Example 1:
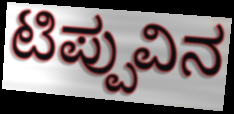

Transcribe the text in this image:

ಟಿಪ್ಪುವಿನ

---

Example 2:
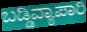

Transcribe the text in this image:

ಬಡ್ಡಿವ್ಯಾಪಾರಿ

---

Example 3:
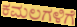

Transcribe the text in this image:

ಕಮಲಗಳಿಗೆ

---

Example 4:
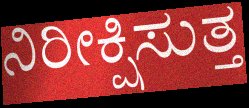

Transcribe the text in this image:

ನಿರೀಕ್ಷಿಸುತ್ತ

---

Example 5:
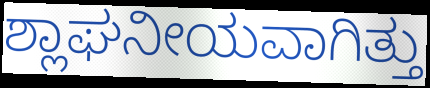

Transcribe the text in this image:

ಶ್ಲಾಘನೀಯವಾಗಿತ್ತು